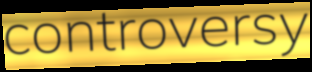
controversy